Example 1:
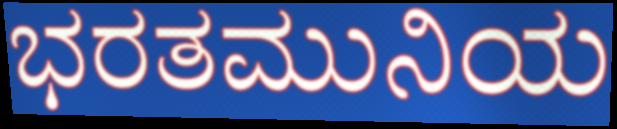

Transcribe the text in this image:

ಭರತಮುನಿಯ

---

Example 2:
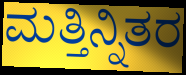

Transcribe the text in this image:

ಮತ್ತಿನ್ನಿತರ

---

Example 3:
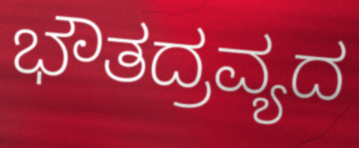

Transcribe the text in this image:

ಭೌತದ್ರವ್ಯದ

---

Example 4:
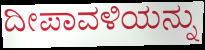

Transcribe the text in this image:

ದೀಪಾವಳಿಯನ್ನು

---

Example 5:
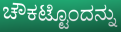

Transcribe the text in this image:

ಚೌಕಟ್ಟೊಂದನ್ನು